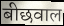
बीछवाल